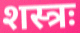
शस्त्रः